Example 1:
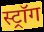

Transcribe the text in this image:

स्ट्रॉग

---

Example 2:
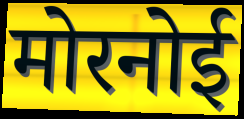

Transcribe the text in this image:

मोरनोई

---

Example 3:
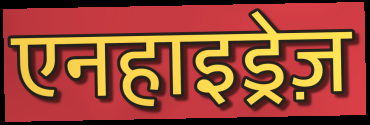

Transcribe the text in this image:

एनहाइड्रेज़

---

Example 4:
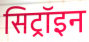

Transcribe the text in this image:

सिट्रॉइन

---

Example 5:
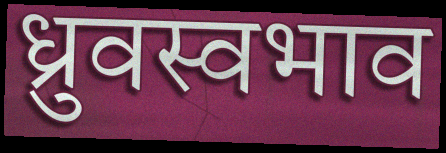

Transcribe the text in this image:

ध्रुवस्वभाव